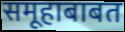
समूहाबाबत